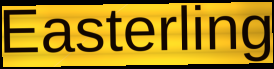
Easterling